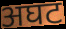
अघट